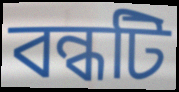
বন্ধটি